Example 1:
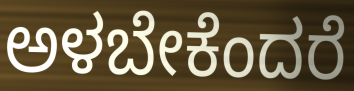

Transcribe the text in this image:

ಅಳಬೇಕೆಂದರೆ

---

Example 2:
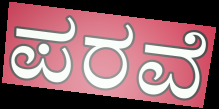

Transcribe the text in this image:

ಪರವೆ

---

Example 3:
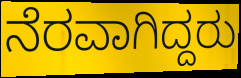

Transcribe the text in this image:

ನೆರವಾಗಿದ್ದರು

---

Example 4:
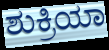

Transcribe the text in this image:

ಶುಕ್ರಿಯಾ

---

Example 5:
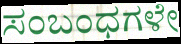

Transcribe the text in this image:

ಸಂಬಂಧಗಳೇ